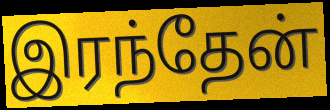
இரந்தேன்